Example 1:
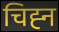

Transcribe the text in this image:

चिह्‍न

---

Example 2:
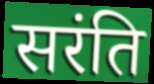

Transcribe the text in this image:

सरंति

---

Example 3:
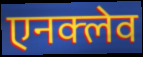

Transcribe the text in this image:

एनक्‍लेव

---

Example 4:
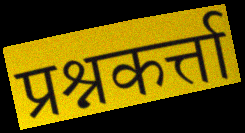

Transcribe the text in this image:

प्रश्नकर्त्ता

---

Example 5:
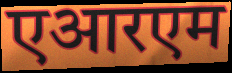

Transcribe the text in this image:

एआरएम